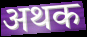
अथक